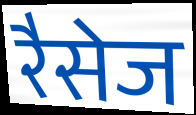
रैसेज